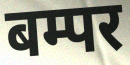
बम्पर